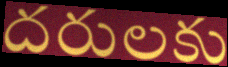
దరులకు